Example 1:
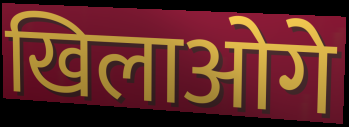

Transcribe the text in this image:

खिलाओगे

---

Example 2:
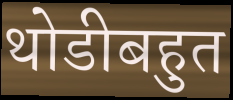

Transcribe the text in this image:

थोडीबहुत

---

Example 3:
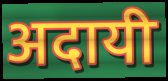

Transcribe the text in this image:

अदायी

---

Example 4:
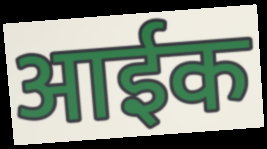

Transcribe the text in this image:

आईक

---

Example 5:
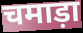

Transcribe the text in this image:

चमाड़ा